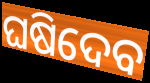
ଘଷିଦେବ